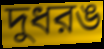
দুধরঙ